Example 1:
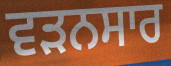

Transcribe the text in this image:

ਵੜਨਸਾਰ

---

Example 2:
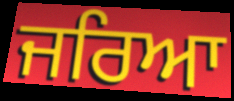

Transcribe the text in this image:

ਜਰਿਆ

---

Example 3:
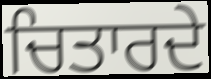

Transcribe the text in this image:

ਚਿਤਾਰਦੇ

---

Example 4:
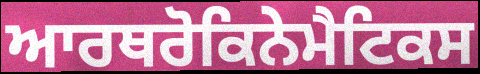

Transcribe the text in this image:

ਆਰਥਰੋਕਿਨੇਮੈਟਿਕਸ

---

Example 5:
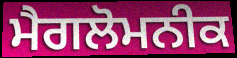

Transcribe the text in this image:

ਮੈਗਲੋਮਨੀਕ